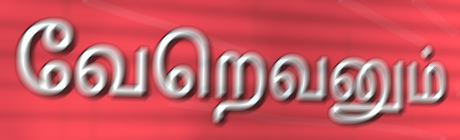
வேறெவனும்